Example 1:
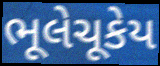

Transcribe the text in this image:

ભૂલેચૂકેય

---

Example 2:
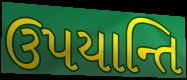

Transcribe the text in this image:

ઉપયાન્તિ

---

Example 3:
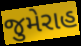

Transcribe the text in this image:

જુમેરાહ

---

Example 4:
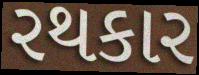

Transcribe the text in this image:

રથકાર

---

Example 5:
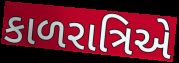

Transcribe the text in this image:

કાળરાત્રિએ